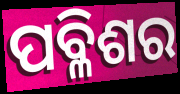
ପବ୍ଳିଶର